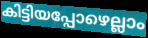
കിട്ടിയപ്പോഴെല്ലാം